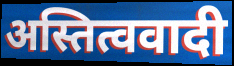
अस्तित्ववादी